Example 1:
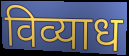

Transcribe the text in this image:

विव्याध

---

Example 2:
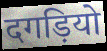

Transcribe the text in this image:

दगड़ियो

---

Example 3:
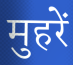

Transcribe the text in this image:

मुहरें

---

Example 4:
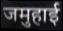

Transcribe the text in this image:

जमुहाई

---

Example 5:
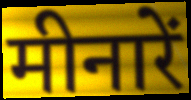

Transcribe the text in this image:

मीनारें